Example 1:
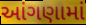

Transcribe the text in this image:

આંગણામાં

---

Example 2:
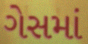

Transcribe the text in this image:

ગેસમાં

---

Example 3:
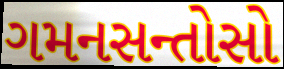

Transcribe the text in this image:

ગમનસન્તોસો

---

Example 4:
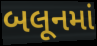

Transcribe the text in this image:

બલૂનમાં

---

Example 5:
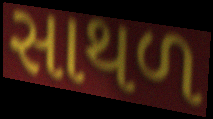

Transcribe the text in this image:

સાથળ